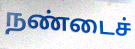
நண்டைச்